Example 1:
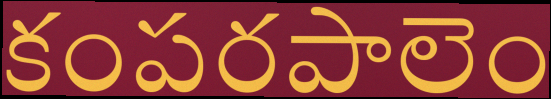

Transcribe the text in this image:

కంపరపాలెం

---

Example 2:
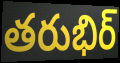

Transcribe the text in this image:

తరుభిర్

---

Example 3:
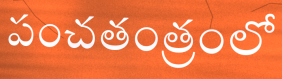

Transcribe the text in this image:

పంచతంత్రంలో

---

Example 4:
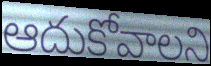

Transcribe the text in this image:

ఆదుకోవాలని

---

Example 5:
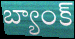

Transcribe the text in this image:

బ్యాంక్